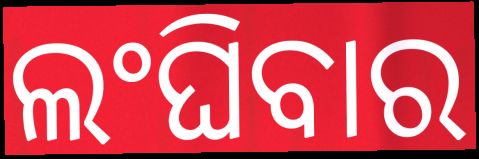
ଲଂଘିବାର